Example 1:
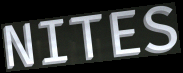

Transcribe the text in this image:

NITES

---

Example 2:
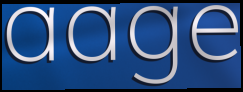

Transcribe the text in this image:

aage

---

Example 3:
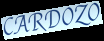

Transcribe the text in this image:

CARDOZO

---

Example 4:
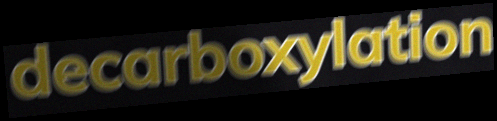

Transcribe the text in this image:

decarboxylation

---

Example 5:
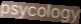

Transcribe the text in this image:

psycology